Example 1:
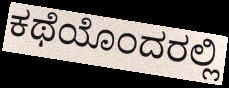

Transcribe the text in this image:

ಕಥೆಯೊಂದರಲ್ಲಿ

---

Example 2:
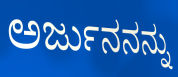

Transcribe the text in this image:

ಅರ್ಜುನನನ್ನು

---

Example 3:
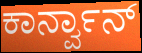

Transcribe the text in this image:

ಕಾರ್ನ್ವಾನ್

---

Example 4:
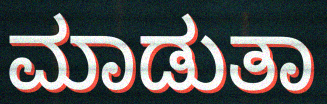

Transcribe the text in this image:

ಮಾಡುತಾ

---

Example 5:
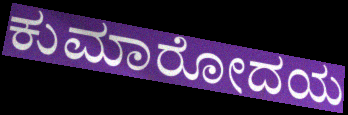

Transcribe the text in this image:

ಕುಮಾರೋದಯ